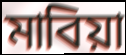
মাবিয়া